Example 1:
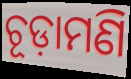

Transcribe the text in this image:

ଚୂଡ଼ାମଣି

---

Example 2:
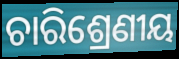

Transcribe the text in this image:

ଚାରିଶ୍ରେଣୀୟ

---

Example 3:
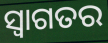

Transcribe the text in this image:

ସ୍ଵାଗତର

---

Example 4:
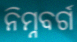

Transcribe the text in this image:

ନିମ୍ନବର୍ଗ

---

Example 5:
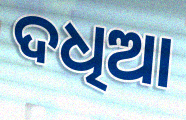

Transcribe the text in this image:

ଦଧିଆ